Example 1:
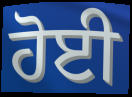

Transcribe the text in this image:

ਹੋਈ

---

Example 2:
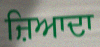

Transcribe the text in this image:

ਜ਼ਿਆਦਾ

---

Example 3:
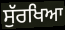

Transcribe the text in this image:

ਸੁੱਰਖਿਆ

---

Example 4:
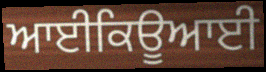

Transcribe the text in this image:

ਆਈਕਿਊਆਈ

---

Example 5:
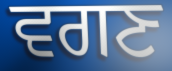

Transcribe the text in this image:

ਵਗਣ